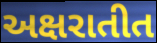
અક્ષરાતીત